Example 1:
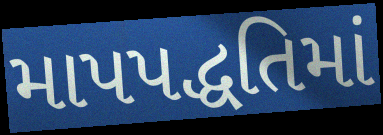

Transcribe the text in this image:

માપપદ્ધતિમાં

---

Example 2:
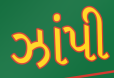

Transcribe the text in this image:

ઝાંપી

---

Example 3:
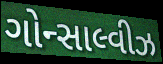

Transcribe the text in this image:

ગોન્સાલ્વીઝ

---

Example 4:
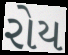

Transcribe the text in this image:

રોય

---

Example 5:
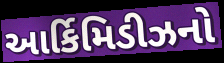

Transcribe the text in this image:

આર્કિમિડીઝનો